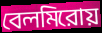
বেলমিরোয়